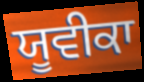
ਯੂਵੀਕਾ